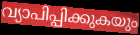
വ്യാപിപ്പിക്കുകയും